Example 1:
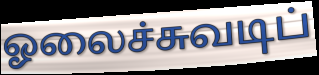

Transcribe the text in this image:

ஓலைச்சுவடிப்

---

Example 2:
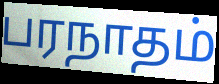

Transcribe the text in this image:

பரநாதம்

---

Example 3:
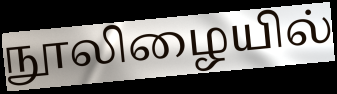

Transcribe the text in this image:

நூலிழையில்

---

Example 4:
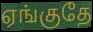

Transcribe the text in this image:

ஏங்குதே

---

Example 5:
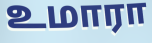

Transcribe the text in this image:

உமாரா